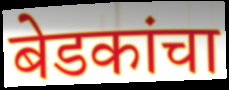
बेडकांचा